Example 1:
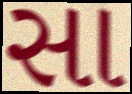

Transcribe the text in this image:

સા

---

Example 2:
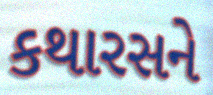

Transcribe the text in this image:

કથારસને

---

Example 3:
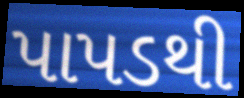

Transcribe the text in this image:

પાપડથી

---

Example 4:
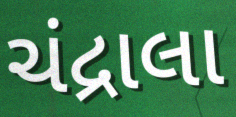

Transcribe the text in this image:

ચંદ્રાલા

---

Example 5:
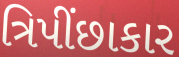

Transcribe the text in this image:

ત્રિપીંછાકાર